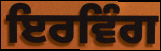
ਇਰਵਿੰਗ